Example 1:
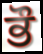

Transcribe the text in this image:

ਭੌ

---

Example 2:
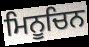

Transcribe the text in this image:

ਮਿਨੂਚਿਨ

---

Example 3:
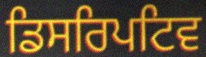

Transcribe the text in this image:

ਡਿਸਰਿਪਟਿਵ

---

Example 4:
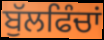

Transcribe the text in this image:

ਬੁੱਲਫਿੰਚਾਂ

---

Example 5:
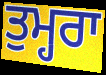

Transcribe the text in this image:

ਤੁਮ੍ਹਰਾ